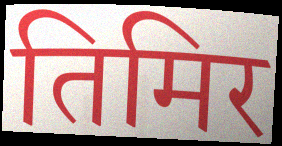
तिमिर